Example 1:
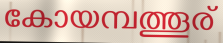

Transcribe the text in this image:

കോയമ്പത്തൂര്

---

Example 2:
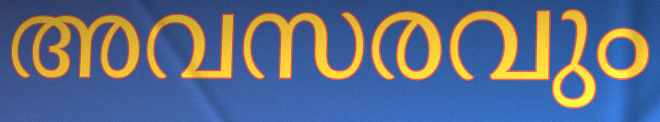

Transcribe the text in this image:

അവസരവും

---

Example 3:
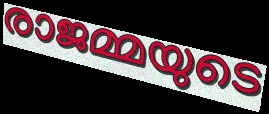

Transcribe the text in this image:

രാജമ്മയുടെ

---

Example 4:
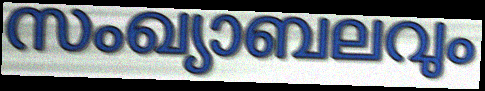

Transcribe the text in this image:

സംഖ്യാബലവും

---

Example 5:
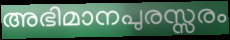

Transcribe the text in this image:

അഭിമാനപുരസ്സരം